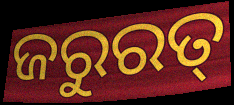
ଜରୁରତ୍